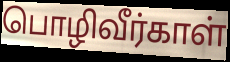
பொழிவீர்காள்